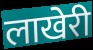
लाखेरी